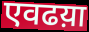
एवढय़ा